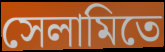
সেলামিতে